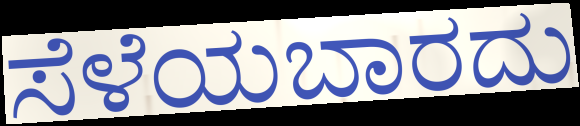
ಸೆಳೆಯಬಾರದು